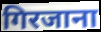
गिरजाना